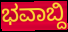
ಭವಾಬ್ದಿ